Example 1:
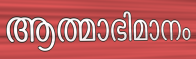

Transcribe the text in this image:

ആത്മാഭിമാനം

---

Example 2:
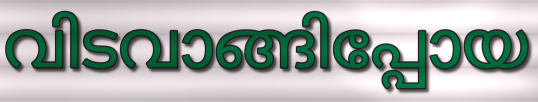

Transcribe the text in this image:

വിടവാങ്ങിപ്പോയ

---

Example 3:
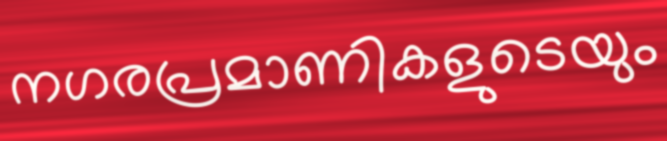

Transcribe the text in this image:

നഗരപ്രമാണികളുടെയും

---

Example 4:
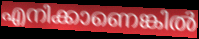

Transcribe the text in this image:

എനിക്കാണെങ്കിൽ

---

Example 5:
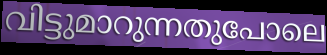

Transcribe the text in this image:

വിട്ടുമാറുന്നതുപോലെ